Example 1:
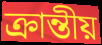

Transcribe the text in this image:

ক্ৰান্তীয়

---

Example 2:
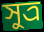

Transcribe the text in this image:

সুত্ৰ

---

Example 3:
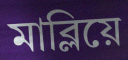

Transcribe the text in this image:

মাব্লিয়ে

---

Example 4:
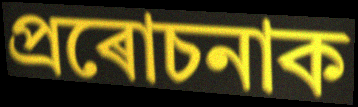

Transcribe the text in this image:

প্ৰৰোচনাক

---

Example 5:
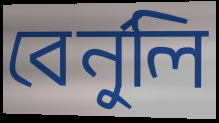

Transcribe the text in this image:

বেৰ্নুলি